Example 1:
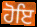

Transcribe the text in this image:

ਹੋਇ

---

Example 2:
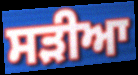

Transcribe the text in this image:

ਸੜੀਆ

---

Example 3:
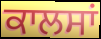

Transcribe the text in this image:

ਕਾਲਸਾਂ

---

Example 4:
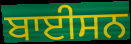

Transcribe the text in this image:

ਬਾਈਸਨ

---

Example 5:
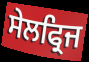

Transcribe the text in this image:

ਸੇਲਫ੍ਰਿਜ